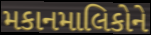
મકાનમાલિકોને